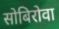
सोबिरोवा